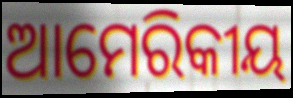
ଆମେରିକୀୟ